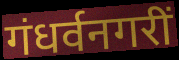
गंधर्वनगरीं